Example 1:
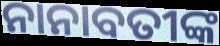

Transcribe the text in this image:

ନାନାବତୀଙ୍କ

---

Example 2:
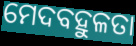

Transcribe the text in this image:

ମେଦବହୁଳତା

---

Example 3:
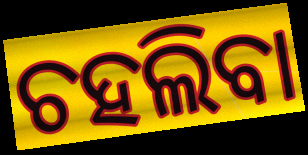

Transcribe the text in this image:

ଚହଲିବା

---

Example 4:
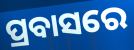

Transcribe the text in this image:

ପ୍ରବାସରେ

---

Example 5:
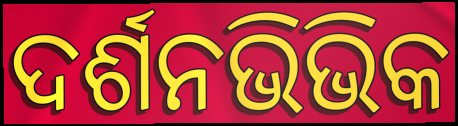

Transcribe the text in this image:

ଦର୍ଶନଭିଭିକ